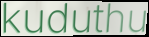
kuduthu